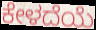
ಕೇಳದೆಯೆ